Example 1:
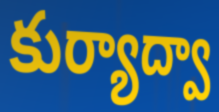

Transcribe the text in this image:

కుర్యాద్వా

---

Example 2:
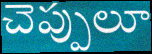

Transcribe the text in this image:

చెప్పులూ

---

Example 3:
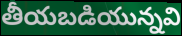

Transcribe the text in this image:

తీయబడియున్నవి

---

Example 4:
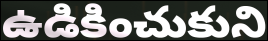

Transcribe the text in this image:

ఉడికించుకుని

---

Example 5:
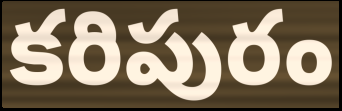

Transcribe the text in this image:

కరిపురం